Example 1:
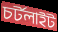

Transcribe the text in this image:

চর্টলাইট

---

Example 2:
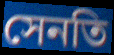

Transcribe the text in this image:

সেনতি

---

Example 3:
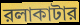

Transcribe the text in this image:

রলাকাটার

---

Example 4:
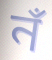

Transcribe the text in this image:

নঁ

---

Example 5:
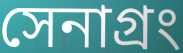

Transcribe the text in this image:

সেনাগ্রং